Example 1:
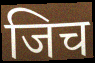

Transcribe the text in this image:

जिच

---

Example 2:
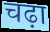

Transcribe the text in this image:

चढ़ा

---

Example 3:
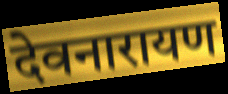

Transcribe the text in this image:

देवनारायण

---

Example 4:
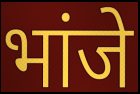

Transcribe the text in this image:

भांजे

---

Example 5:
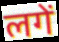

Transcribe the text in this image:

लगें